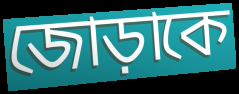
জোড়াকে